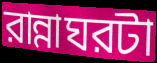
রান্নাঘরটা